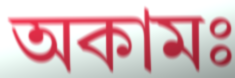
অকামঃ